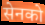
सेनको